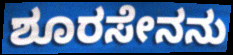
ಶೂರಸೇನನು